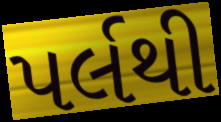
પર્લથી